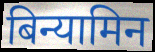
बिन्यामिन